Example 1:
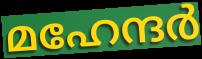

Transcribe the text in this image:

മഹേന്ദർ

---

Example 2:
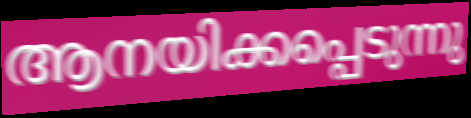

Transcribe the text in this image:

ആനയിക്കപ്പെടുന്നു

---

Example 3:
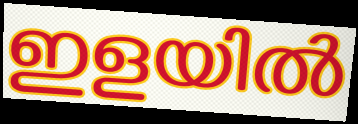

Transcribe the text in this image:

ഇളയിൽ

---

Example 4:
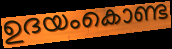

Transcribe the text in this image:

ഉദയംകൊണ്ട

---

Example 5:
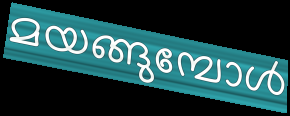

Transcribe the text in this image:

മയങ്ങുമ്പോൾ